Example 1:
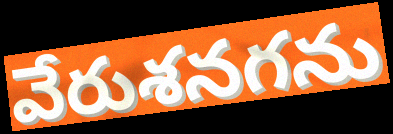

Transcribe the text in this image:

వేరుశనగను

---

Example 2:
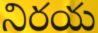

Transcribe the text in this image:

నిరయ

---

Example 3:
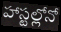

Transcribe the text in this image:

హాస్టల్లోనో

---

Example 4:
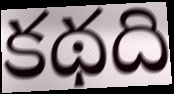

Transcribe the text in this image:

కథది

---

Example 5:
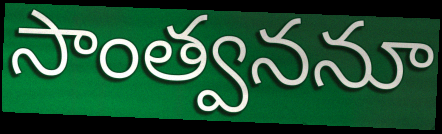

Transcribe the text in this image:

సాంత్వననూ